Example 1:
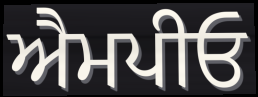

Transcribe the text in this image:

ਐਮਪੀਓ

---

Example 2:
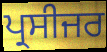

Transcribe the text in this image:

ਪ੍ਰਸੀਜਰ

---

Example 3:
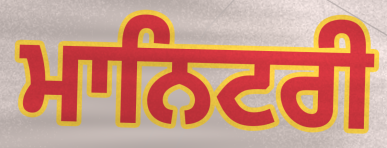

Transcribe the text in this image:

ਮਾਨਿਟਰੀ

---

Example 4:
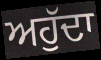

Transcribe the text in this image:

ਅਹੁੱਦਾ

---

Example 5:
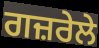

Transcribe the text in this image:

ਗਜ਼ਰੇਲੇ